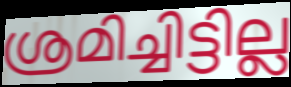
ശ്രമിച്ചിട്ടില്ല